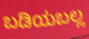
ಬಡಿಯಬಲ್ಲ